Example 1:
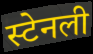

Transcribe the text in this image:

स्‍टेनली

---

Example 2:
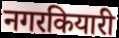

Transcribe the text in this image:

नगरकियारी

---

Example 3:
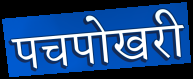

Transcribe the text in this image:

पचपोखरी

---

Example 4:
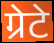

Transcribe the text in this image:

ग्रेटे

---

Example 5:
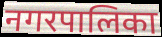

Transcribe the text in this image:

नगरपालिका